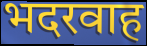
भदरवाह